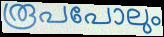
രൂപപോലും